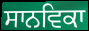
ਸਾਨਵਿਕਾ